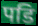
पडि